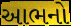
આભનો